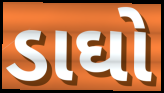
ડાઘો